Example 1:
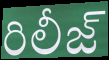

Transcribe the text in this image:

రిలీజ్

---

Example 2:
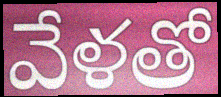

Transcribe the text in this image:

వేళతో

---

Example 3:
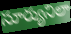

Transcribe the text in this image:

సూర్యునిలా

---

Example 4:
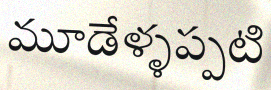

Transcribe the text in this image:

మూడేళ్ళప్పటి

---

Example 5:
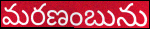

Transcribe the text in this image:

మరణంబును